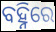
ବହ୍ନିରେ